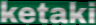
ketaki